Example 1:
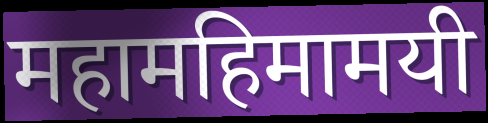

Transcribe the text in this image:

महामहिमामयी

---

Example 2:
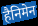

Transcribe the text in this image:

हैनिमेन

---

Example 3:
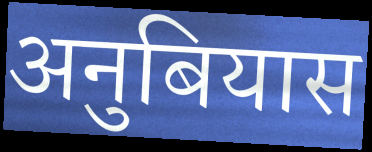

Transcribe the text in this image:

अनुबियास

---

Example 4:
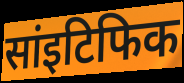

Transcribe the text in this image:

सांइटिफिक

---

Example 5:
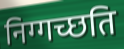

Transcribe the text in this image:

निग्गच्छति